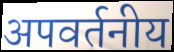
अपवर्तनीय